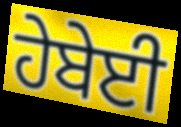
ਹੇਬੇਈ